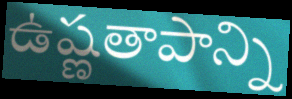
ఉష్ణతాపాన్ని